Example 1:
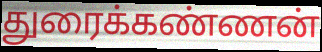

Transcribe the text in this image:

துரைக்கண்ணன்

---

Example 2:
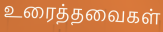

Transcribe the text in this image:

உரைத்தவைகள்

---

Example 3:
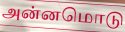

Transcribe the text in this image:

அன்னமொடு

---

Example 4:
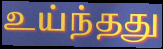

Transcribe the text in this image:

உய்ந்தது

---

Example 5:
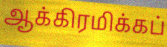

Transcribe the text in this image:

ஆக்கிரமிக்கப்